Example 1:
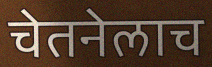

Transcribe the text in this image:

चेतनेलाच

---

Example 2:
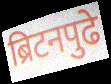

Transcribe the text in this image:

ब्रिटनपुढे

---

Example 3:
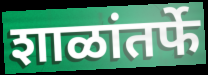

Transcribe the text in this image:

शाळांतर्फे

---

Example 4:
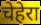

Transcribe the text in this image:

चेहेरा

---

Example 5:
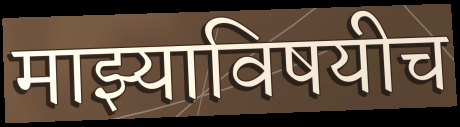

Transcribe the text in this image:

माझ्याविषयीच